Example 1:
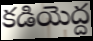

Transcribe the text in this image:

కడియెద్ద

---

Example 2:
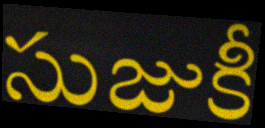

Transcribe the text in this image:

సుజుకీ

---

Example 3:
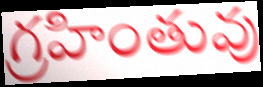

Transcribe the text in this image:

గ్రహింతువు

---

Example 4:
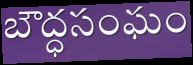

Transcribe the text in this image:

బౌద్ధసంఘం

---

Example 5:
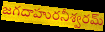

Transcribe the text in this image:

జగదాహురనీశ్వరమ్